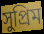
সুপ্রিম